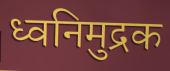
ध्वनिमुद्रक